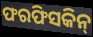
ଫରଫିସକିନ୍